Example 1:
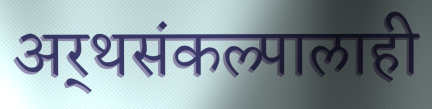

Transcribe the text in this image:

अर्थसंकल्पालाही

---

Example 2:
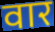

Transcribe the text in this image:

वार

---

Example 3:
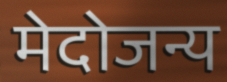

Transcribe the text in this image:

मेदोजन्य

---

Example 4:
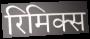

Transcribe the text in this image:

रिमिक्स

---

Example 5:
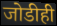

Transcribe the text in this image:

जोडीही